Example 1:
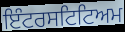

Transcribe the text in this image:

ਇੰਟਰਸਟਿਟਿਅਮ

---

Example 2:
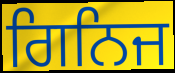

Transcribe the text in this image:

ਗਿਨਿਜ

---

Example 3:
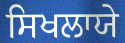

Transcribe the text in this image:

ਸਿਖਲਾਯੇ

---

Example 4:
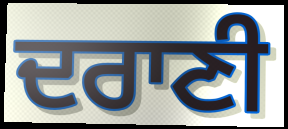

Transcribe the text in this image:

ਦਰਾਣੀ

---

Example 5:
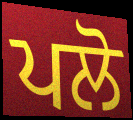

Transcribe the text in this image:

ਪਲੋ